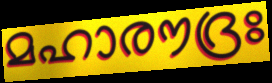
മഹാരൗദ്രഃ